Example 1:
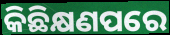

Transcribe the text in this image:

କିଛିକ୍ଷଣପରେ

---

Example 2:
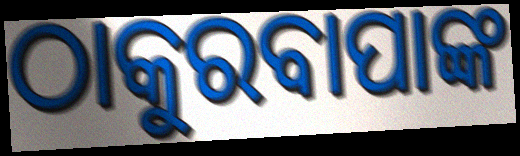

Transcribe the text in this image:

ଠାକୁରବାପାଙ୍କ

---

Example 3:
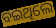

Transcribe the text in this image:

ବଇଥିଲେ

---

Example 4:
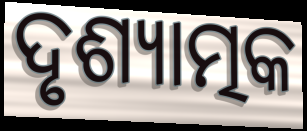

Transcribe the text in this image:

ଦୃଶ୍ୟାତ୍ମକ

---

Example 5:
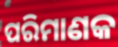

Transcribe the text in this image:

ପରିମାଣକ